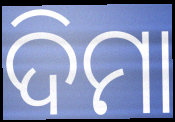
ଦିମା